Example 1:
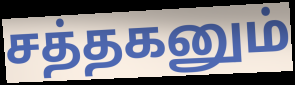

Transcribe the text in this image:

சத்தகனும்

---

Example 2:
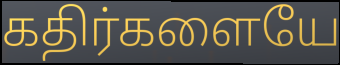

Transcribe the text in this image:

கதிர்களையே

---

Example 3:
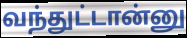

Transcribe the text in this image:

வந்துட்டான்னு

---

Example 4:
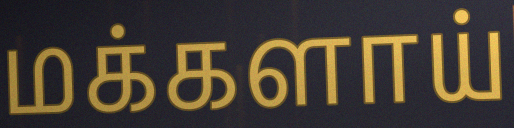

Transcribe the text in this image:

மக்களாய்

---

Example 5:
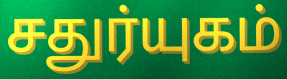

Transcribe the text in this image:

சதுர்யுகம்